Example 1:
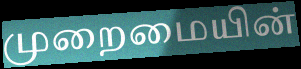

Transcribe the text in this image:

முறைமையின்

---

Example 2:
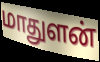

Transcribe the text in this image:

மாதுளன்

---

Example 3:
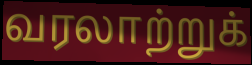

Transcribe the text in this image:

வரலாற்றுக்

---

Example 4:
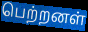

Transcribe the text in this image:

பெற்றனள்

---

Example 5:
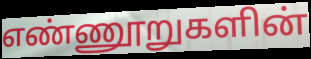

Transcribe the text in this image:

எண்ணூறுகளின்